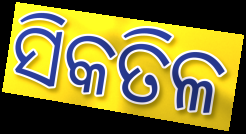
ସିକତିଳ